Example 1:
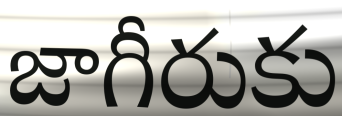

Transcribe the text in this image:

జాగీరుకు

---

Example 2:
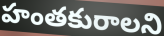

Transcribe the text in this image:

హంతకురాలని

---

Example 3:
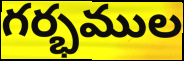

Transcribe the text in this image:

గర్భముల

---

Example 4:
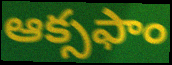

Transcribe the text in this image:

ఆక్సఫాం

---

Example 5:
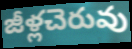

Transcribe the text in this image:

జీళ్లచెరువు